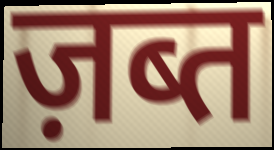
ज़ब्त